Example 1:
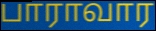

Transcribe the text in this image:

பாராவார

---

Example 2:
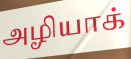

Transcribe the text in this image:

அழியாக்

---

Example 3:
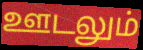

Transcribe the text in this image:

ஊடலும்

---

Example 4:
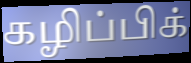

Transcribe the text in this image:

கழிப்பிக்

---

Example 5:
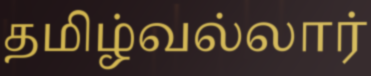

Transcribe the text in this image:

தமிழ்வல்லார்